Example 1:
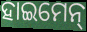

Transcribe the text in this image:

ହାଇମେନ୍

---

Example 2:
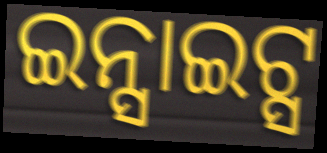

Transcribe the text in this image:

ଇନ୍ସାଇଟ୍ସ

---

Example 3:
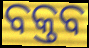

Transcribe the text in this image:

ବକ୍ତବ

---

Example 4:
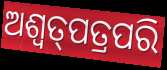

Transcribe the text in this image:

ଅଶ୍ଵତ୍‌ପତ୍ରପରି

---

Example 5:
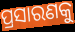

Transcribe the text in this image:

ପ୍ରସାରଣକୁ